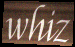
whiz